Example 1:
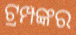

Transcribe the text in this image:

ଟ୍ରମ୍ପଙ୍କର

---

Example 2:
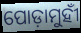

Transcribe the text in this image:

ପୋଡ଼ାମୁହୀଁ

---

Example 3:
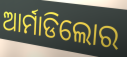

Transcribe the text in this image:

ଆର୍ମାଡିଲୋର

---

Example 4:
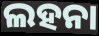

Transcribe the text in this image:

ଲହନା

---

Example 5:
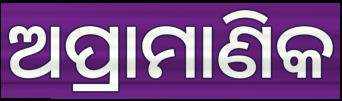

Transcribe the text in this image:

ଅପ୍ରାମାଣିକ